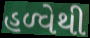
હળ્વેથી